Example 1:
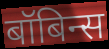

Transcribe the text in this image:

बॉबिन्स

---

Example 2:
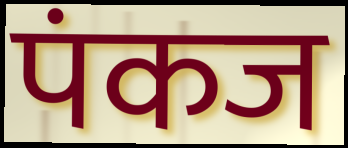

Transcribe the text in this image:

पंकज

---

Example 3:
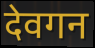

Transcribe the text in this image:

देवगन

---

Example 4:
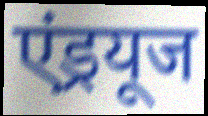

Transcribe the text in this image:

एंड्रयूज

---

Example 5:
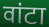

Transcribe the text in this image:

वांटा